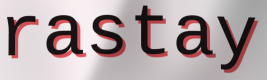
rastay